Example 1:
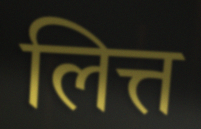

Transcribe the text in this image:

लित्त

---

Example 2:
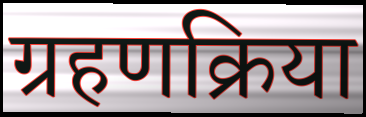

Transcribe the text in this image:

ग्रहणक्रिया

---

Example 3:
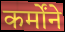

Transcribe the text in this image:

कर्मोंने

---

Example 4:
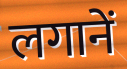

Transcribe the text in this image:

लगानें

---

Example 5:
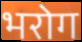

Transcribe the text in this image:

भरोग